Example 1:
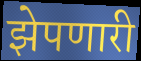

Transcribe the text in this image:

झेपणारी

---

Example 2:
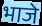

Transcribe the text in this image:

भाजे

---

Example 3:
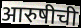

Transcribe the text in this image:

आरुषीची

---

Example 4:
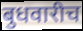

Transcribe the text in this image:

बुधवारीच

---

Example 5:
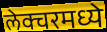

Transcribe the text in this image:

लेक्चरमध्ये